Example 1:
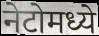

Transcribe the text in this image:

नेटोमध्ये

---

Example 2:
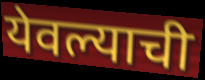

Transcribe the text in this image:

येवल्याची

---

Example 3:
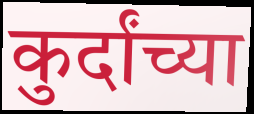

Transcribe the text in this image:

कुर्दांच्या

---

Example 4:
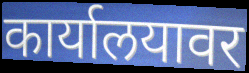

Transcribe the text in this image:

कार्यालयावर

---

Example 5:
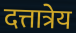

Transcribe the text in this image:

दत्तात्रेय